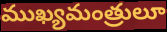
ముఖ్యమంత్రులూ